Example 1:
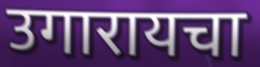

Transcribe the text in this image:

उगारायचा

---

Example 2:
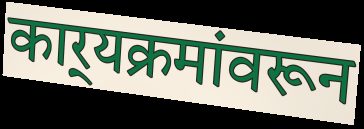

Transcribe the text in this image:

कार्यक्रमांवरून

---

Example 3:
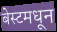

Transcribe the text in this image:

बेस्टमधून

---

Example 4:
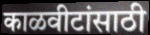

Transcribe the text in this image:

काळवीटांसाठी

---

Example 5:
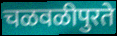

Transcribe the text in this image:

चळवळीपुरते